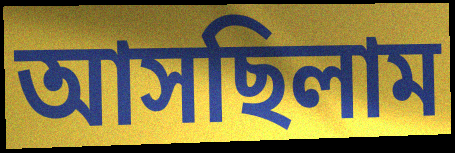
আসছিলাম